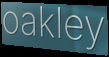
oakley